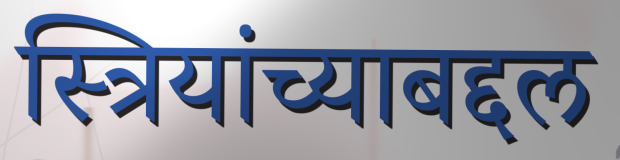
स्त्रियांच्याबद्दल